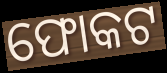
ଫୋକଟ